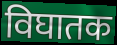
विघातक